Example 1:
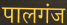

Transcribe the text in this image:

पालगंज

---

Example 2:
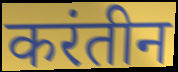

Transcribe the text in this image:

करंतीन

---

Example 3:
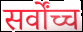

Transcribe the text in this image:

सर्वोंच्च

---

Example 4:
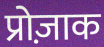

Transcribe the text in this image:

प्रोज़ाक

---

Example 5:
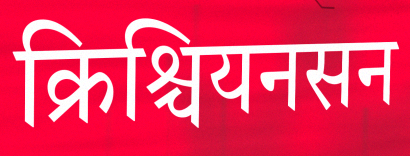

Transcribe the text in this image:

क्रिश्चियनसन